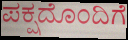
ಪಕ್ಷದೊಂದಿಗೆ